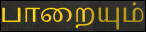
பாறையும்